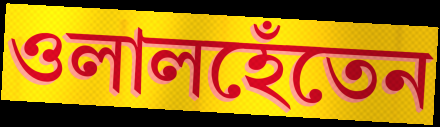
ওলালহেঁতেন